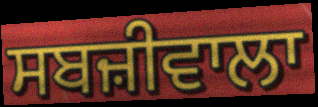
ਸਬਜ਼ੀਵਾਲਾ